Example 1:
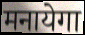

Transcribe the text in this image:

मनायेगा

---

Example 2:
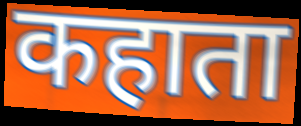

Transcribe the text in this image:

कहाता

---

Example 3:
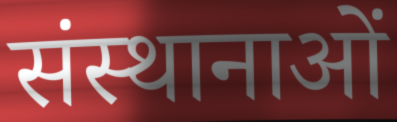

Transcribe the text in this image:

संस्थानाओं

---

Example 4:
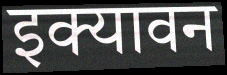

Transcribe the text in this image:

इक्यावन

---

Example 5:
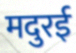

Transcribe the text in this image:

मदुरई